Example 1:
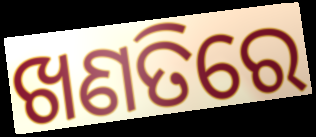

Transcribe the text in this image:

ଖଣତିରେ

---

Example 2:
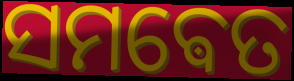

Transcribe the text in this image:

ସମଵେତ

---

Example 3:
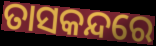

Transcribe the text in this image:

ତାସକନ୍ଦରେ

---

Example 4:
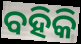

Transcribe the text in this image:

ବହିକି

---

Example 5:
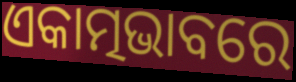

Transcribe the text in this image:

ଏକାତ୍ମଭାବରେ